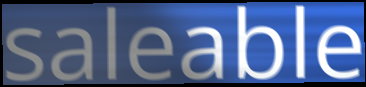
saleable